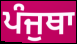
ਪੰਜੁਥਾ